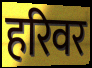
हरिवर